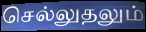
செல்லுதலும்